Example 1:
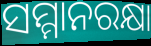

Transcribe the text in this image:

ସମ୍ମାନରକ୍ଷା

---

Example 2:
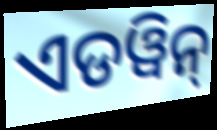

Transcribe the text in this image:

ଏଡୱିନ୍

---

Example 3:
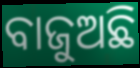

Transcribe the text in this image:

ବାଜୁଅଛି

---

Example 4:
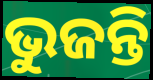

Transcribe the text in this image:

ଭୁଜନ୍ତି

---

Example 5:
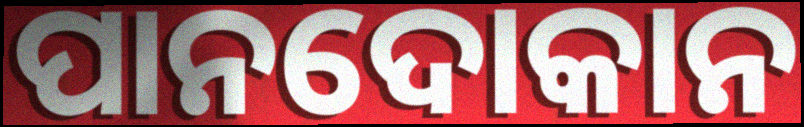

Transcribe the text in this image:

ପାନଦୋକାନ